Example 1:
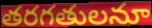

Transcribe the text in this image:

తరగతులనూ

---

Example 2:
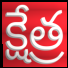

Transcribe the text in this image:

క్షేత్ర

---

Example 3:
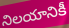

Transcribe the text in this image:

నిలయానికీ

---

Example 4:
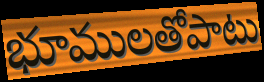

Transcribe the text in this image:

భూములతోపాటు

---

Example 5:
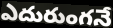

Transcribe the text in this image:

ఎదురుంగనే